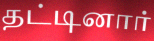
தட்டினார்